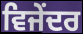
ਵਿਜੇਂਦਰ